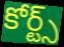
కోర్ట్స్